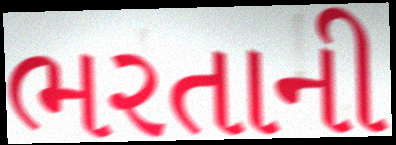
ભરતાની